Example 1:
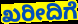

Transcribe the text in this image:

ಖರೀದಿಗೆ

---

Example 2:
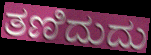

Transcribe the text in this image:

ತಣಿದುದು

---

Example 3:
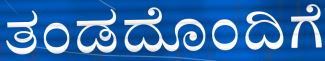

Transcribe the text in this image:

ತಂಡದೊಂದಿಗೆ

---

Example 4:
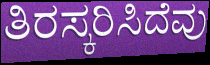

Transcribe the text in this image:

ತಿರಸ್ಕರಿಸಿದೆವು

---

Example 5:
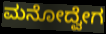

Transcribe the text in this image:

ಮನೋದ್ವೇಗ